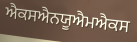
ਐਕਸਐਨਯੂਐਮਐਕਸ